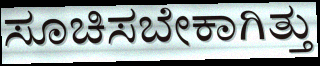
ಸೂಚಿಸಬೇಕಾಗಿತ್ತು